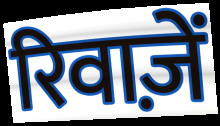
रिवाज़ें